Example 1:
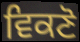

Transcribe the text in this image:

ਵਿਕਣੋ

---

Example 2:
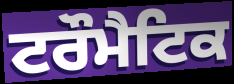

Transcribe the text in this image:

ਟਰੌਮੈਟਿਕ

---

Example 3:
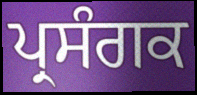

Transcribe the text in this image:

ਪ੍ਰਸੰਗਕ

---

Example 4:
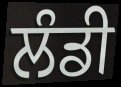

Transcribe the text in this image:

ਲੰਡੀ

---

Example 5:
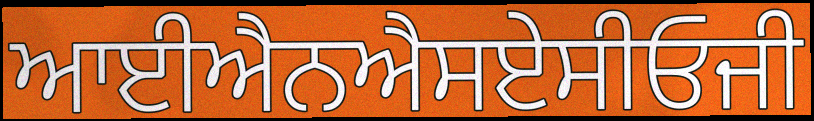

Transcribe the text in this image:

ਆਈਐਨਐਸਏਸੀਓਜੀ